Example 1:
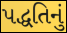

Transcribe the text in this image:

પદ્ધતિનું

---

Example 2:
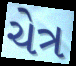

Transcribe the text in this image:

ચેત્ર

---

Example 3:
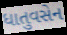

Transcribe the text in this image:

ધાતુવસેન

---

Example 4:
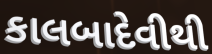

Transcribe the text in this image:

કાલબાદેવીથી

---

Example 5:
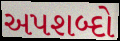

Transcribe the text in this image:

અપશબ્દો